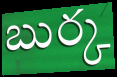
బుర్క